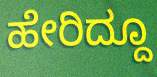
ಹೇರಿದ್ದೂ